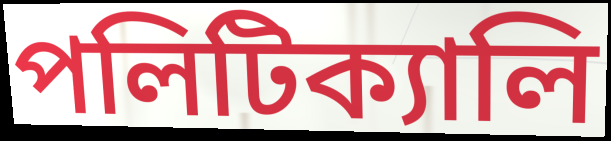
পলিটিক্যালি